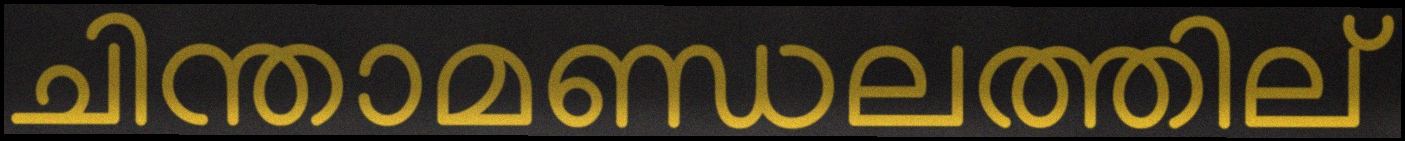
ചിന്താമണ്ഡലത്തില്